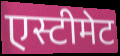
एस्टीमेट